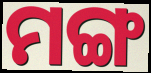
ମଙ୍ଗ